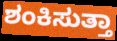
ಶಂಕಿಸುತ್ತಾ